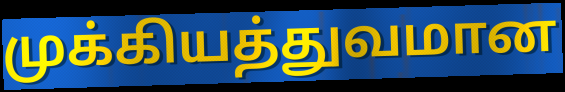
முக்கியத்துவமான